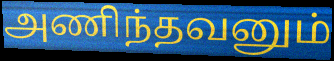
அணிந்தவனும்